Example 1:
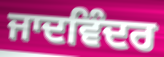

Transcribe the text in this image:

ਜਾਦਵਿੰਦਰ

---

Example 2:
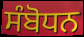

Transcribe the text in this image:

ਸੰਬੋਧਨ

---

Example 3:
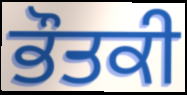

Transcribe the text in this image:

ਭੌਤਕੀ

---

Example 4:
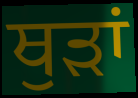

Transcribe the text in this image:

ਥੁੜਾਂ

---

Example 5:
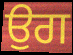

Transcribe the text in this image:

ਉਗ